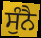
ਸੁੰਨੈ